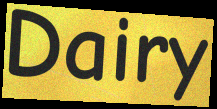
Dairy